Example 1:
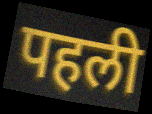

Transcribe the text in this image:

पहली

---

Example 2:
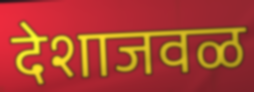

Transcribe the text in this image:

देशाजवळ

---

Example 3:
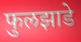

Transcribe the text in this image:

फुलझाडे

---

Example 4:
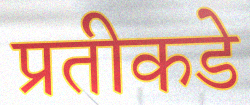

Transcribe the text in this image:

प्रतीकडे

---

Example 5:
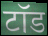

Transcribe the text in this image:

टॉड